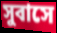
সুবাসে